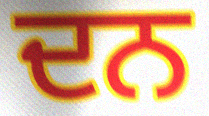
ਦਨ